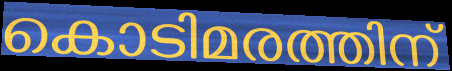
കൊടിമരത്തിന്